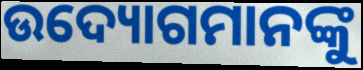
ଉଦ୍ୟୋଗମାନଙ୍କୁ